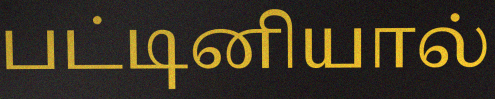
பட்டினியால்